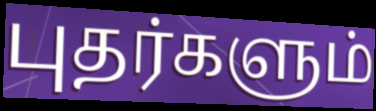
புதர்களும்